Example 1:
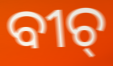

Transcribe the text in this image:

ବୀଚ୍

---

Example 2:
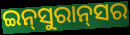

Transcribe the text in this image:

ଇନ୍‍ସୁରାନ୍‍ସର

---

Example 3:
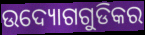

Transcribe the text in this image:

ଉଦ୍ୟୋଗଗୁଡିକର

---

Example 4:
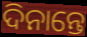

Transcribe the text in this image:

ଦିନାନ୍ତେ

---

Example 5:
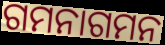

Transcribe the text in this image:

ଗମନାଗମନ